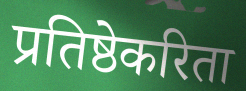
प्रतिष्ठेकरिता